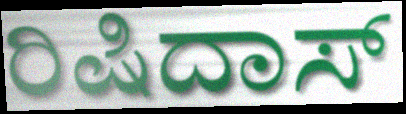
ರಿಷಿದಾಸ್